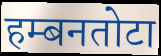
हम्बनतोटा